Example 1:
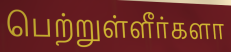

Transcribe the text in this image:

பெற்றுள்ளீர்களா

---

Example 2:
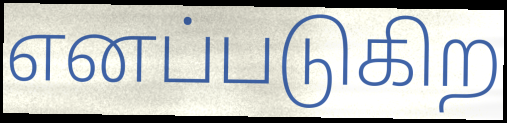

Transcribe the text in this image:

எனப்படுகிற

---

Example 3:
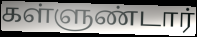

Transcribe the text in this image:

கள்ளுண்டார்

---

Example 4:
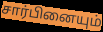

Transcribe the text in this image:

சார்பினையும்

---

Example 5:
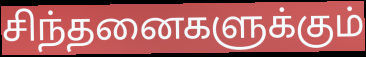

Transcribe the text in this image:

சிந்தனைகளுக்கும்